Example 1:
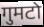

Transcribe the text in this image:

गुमटो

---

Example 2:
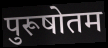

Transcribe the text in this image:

पुरूषोतम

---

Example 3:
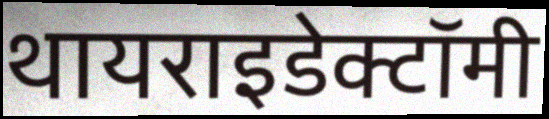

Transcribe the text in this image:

थायराइडेक्टॉमी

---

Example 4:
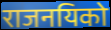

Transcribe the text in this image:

राजनयिको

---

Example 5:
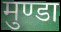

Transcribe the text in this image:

मुण्डा